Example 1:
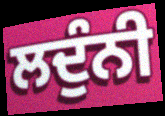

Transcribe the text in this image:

ਲਦੁੰਨੀ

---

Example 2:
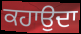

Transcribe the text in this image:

ਕਹਾਉਦਾ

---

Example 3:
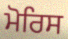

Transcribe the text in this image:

ਮੋਰਿਸ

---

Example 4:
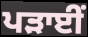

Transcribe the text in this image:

ਪੜਾਈਂ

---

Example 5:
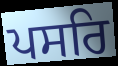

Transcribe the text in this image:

ਪਸਰਿ